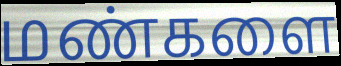
மண்களை